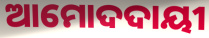
ଆମୋଦଦାୟୀ